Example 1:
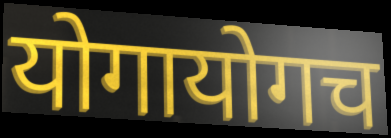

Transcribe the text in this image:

योगायोगच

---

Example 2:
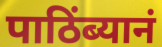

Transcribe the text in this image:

पाठिंब्यानं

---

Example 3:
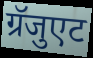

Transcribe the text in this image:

ग्रॅजुएट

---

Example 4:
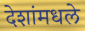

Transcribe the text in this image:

देशांमधले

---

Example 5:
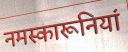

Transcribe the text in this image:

नमस्कारूनियां